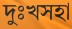
দুঃখসহা